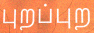
புறப்புற